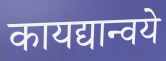
कायद्यान्वये